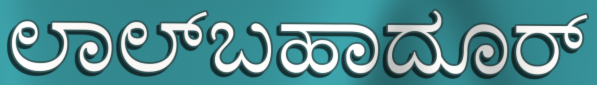
ಲಾಲ್‌ಬಹಾದೂರ್